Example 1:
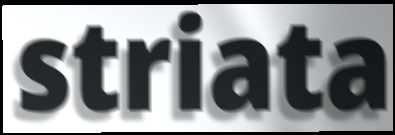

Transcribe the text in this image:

striata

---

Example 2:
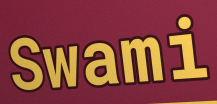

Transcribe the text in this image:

Swami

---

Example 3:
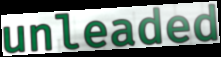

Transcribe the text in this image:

unleaded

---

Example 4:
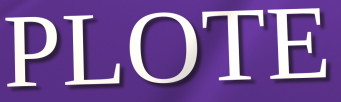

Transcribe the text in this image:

PLOTE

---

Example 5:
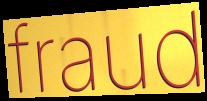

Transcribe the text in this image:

fraud